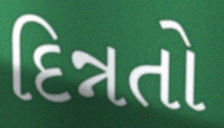
દિન્નતો